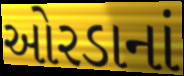
ઓરડાનાં